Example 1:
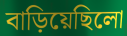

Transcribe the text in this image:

বাড়িয়েছিলো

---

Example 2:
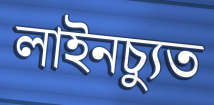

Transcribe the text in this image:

লাইনচ্যুত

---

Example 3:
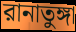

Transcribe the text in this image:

রানাতুঙ্গা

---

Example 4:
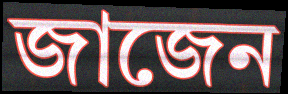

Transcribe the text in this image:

জাজেন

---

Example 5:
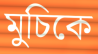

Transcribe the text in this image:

মুচিকে